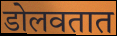
डोलवतात